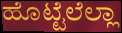
ಹೊಟ್ಟೆಲೆಲ್ಲಾ